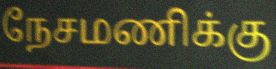
நேசமணிக்கு